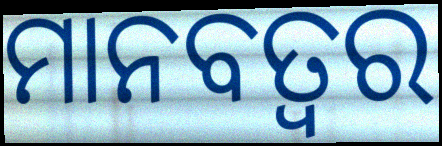
ମାନବତ୍ୱର